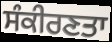
ਸੰਕੀਰਣਤਾ